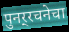
पुनर्रचनेचा